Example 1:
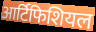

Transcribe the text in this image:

आर्टिफिशियल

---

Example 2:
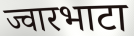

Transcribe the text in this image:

ज्वारभाटा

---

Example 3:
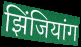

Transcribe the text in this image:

झिंजियांग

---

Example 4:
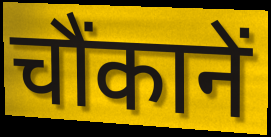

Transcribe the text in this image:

चौंकानें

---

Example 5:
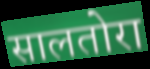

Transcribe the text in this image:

सालतोरा